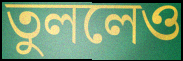
তুললেও